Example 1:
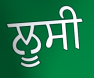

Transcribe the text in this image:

ਲੂਸੀ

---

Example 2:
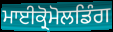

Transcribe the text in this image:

ਮਾਈਕ੍ਰੋਮੋਲਡਿੰਗ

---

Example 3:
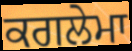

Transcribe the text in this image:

ਕਗਲੇਮਾ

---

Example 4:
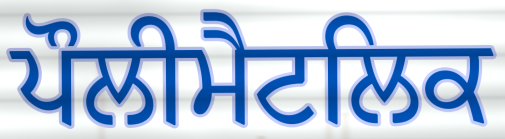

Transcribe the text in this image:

ਪੌਲੀਮੈਟਲਿਕ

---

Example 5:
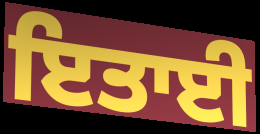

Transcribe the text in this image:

ਇਤਾਈ